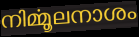
നിൎമ്മൂലനാശം